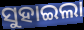
ସୁହାଇଲା